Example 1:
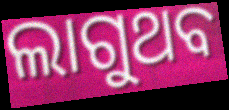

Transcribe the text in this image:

ଲାଗୁଥବ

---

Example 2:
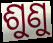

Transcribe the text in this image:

ଶୁଣୁ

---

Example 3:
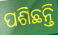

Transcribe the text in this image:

ପଶିଛନ୍ତି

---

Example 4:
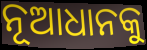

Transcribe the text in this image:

ନୂଆଧାନକୁ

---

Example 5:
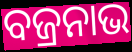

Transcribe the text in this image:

ବଜ୍ରନାଭ